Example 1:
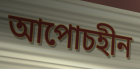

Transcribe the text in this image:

আপোচহীন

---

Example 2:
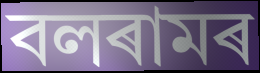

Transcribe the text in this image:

বলৰামৰ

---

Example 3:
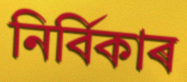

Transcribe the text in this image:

নিৰ্বিকাৰ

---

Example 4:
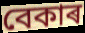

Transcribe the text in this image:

বেকাৰ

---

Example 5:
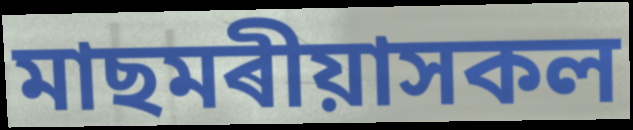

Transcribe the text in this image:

মাছমৰীয়াসকল